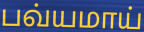
பவ்யமாய்